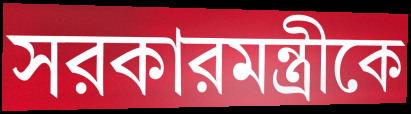
সরকারমন্ত্রীকে